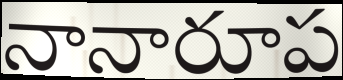
నానారూప